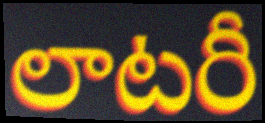
లాటరీ